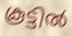
കൂട്ടിൽ